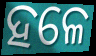
ହଳେ